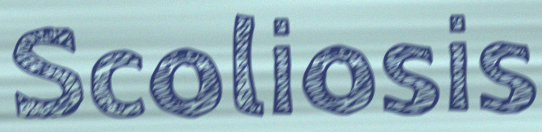
Scoliosis